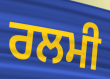
ਰਲਮੀ